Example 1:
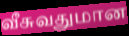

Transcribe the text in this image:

வீசுவதுமான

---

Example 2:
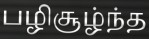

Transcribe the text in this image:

பழிசூழ்ந்த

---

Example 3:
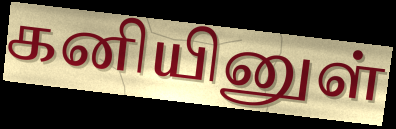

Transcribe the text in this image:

கனியினுள்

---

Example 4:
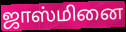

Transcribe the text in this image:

ஜாஸ்மினை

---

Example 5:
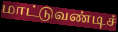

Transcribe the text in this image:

மாட்டுவண்டிச்